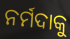
ନର୍ମଦାକୁ